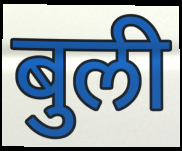
बुली